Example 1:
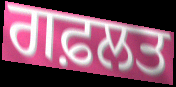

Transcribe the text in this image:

ਗਫ਼ਲਤ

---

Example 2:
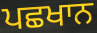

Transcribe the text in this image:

ਪਛਖਾਨ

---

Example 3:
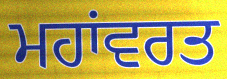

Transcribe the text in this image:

ਮਹਾਂਵਰਤ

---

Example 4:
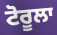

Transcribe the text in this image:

ਟੋਰੂਲਾ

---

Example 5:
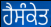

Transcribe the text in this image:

ਹੈਸੰਕੇਤ